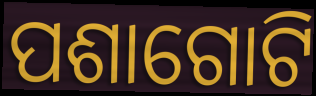
ପଶାଗୋଟି